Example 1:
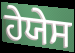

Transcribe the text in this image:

ਹੇਯੇਸ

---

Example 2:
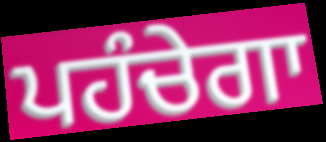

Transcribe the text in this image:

ਪਹੰਚੇਗਾ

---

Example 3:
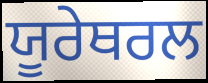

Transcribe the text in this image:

ਯੂਰੇਥਰਲ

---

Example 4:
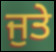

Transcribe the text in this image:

ਜੁਤੇ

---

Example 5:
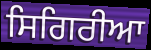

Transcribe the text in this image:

ਸਿਗਿਰੀਆ